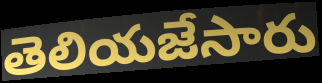
తెలియజేసారు